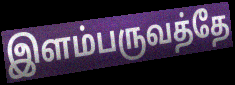
இளம்பருவத்தே